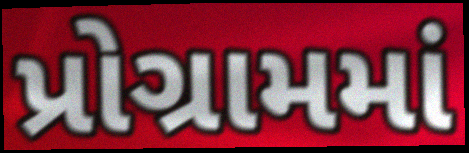
પ્રોગ્રામમાં